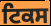
ਟਿਕਸ